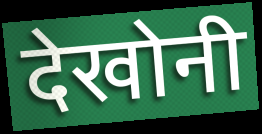
देखोनी